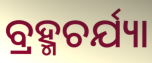
ବ୍ରହ୍ମଚର୍ଯ୍ୟା